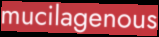
mucilagenous